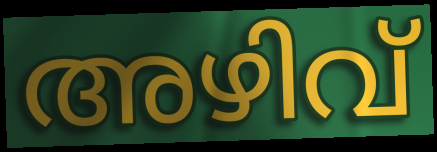
അഴിവ്